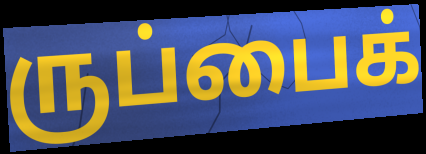
ருப்பைக்